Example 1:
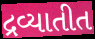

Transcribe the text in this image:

દ્રવ્યાતીત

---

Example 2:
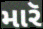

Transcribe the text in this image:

મારૅ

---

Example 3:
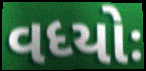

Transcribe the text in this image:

વધ્યોઃ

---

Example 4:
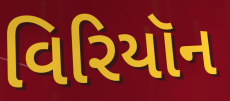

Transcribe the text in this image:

વિરિયૉન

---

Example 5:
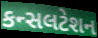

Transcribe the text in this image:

કન્સલટેશન